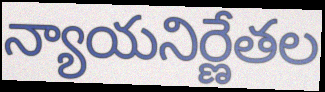
న్యాయనిర్ణేతల